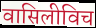
वासिलीविच